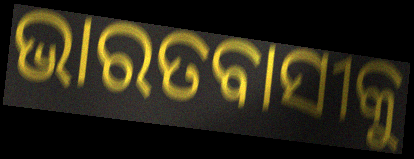
ଭାରତବାସୀକୁ